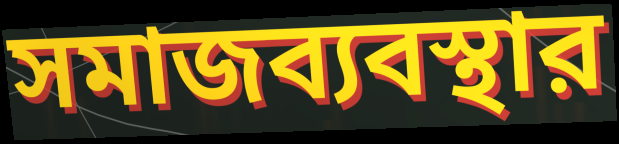
সমাজব্যবস্থার